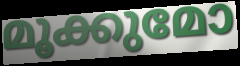
മൂക്കുമോ